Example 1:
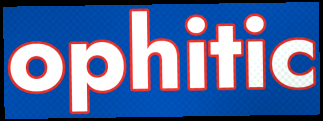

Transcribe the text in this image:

ophitic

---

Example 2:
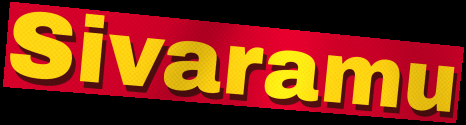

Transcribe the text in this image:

Sivaramu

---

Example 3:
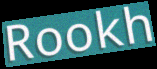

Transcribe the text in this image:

Rookh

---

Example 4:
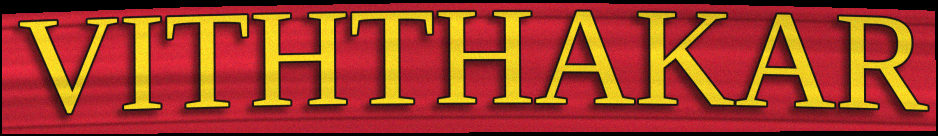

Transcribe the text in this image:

VITHTHAKAR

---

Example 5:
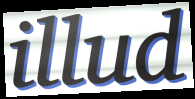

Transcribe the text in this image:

illud